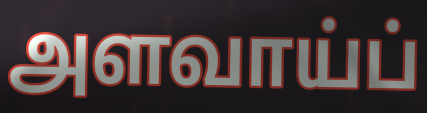
அளவாய்ப்